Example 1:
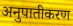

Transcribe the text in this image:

अनुपातीकरण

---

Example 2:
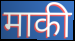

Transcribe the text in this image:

माकी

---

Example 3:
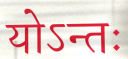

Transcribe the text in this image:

योऽन्तः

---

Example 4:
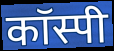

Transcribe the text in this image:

कॉस्पी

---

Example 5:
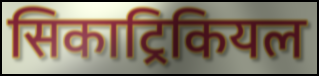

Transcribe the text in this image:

सिकाट्रिकियल